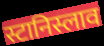
स्टानिस्लाव